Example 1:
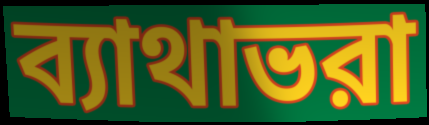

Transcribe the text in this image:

ব্যাথাভরা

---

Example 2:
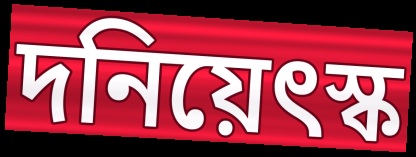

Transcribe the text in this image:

দনিয়েৎস্ক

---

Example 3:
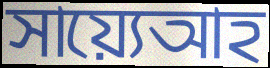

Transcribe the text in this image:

সায়্যেআহ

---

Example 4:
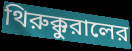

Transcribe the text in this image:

থিরুক্কুরালের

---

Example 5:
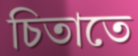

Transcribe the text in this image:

চিতাতে